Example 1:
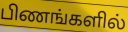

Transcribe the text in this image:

பிணங்களில்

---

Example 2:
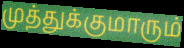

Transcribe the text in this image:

முத்துக்குமாரும்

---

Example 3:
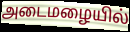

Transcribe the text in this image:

அடைமழையில்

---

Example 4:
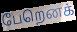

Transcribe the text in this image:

பேறெனக்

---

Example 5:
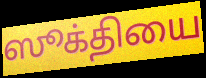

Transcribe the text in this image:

ஸூக்தியை